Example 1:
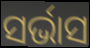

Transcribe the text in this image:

ସର୍ଭାସ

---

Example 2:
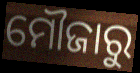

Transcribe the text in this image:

ମୌଜାରୁ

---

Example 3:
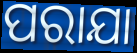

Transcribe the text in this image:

ପରାଯା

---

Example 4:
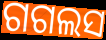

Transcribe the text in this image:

ଗଗଲସ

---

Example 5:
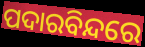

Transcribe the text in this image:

ପଦାରବିନ୍ଦରେ